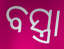
ବସ୍ତ୍ରା